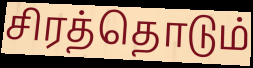
சிரத்தொடும்